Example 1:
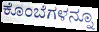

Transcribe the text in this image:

ಕೊಂಬೆಗಳನ್ನೂ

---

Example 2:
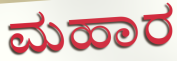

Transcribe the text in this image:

ಮಹಾರ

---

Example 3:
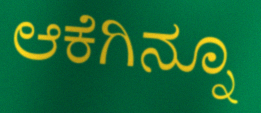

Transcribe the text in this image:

ಆಕೆಗಿನ್ನೂ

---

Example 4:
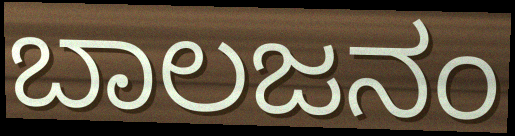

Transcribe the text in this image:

ಬಾಲಜನಂ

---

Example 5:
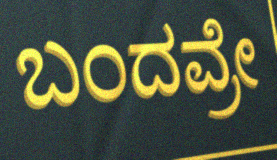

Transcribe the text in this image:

ಬಂದವ್ರೇ